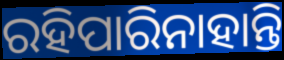
ରହିପାରିନାହାନ୍ତି